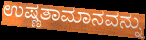
ಉಷ್ಣತಾಮಾನವನ್ನು